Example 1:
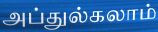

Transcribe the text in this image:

அப்துல்கலாம்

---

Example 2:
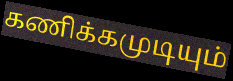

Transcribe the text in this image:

கணிக்கமுடியும்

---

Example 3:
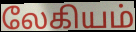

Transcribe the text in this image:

லேகியம்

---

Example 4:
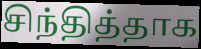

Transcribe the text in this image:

சிந்தித்தாக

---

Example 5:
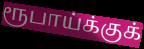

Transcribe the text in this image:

ரூபாய்க்குக்